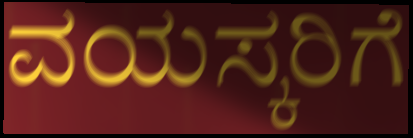
ವಯಸ್ಕರಿಗೆ